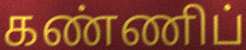
கண்ணிப்